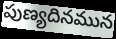
పుణ్యదినమున